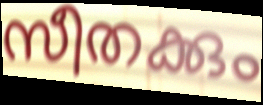
സീതക്കും